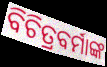
ବିଚିତ୍ରବର୍ମାଙ୍କ